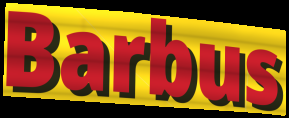
Barbus